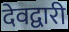
देवद्वारी